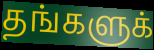
தங்களுக்